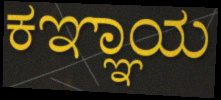
ಕಞ್ಞಾಯ